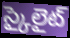
స్కైలైట్